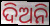
ଦିଅନି